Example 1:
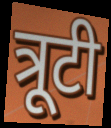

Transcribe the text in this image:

त्रूटी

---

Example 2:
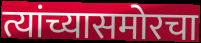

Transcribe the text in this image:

त्यांच्यासमोरचा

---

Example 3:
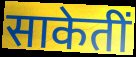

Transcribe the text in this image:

साकेतीं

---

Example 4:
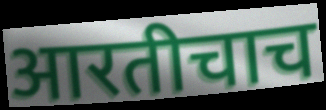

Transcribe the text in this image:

आरतीचाच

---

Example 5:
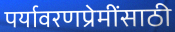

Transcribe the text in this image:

पर्यावरणप्रेमींसाठी